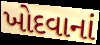
ખોદવાનાં